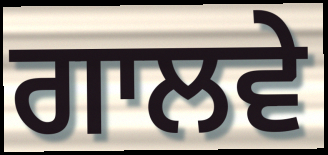
ਗਾਲਵੇ